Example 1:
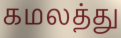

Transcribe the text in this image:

கமலத்து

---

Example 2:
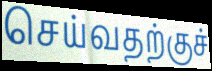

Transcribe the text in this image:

செய்வதற்குச்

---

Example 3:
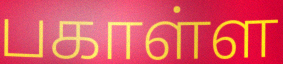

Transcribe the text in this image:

பகாள்ள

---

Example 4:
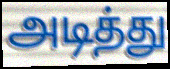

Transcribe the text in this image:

அடித்து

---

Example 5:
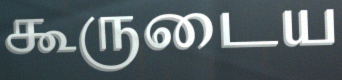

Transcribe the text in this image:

கூருடைய